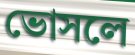
ভোসলে